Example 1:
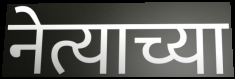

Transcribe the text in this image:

नेत्याच्या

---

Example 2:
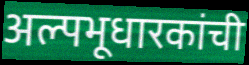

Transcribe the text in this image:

अल्पभूधारकांची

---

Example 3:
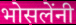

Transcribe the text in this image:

भोसलेंनी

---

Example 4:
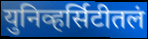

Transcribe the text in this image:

युनिव्हर्सिटीतलं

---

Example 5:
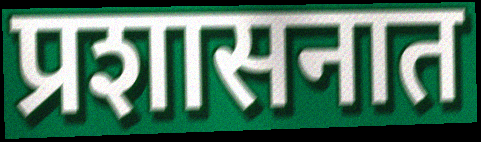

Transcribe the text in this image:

प्रशासनात